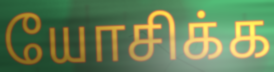
யோசிக்க